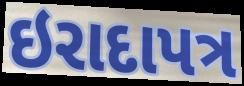
ઇરાદાપત્ર